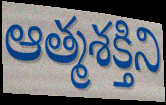
ఆత్మశక్తిని